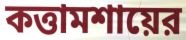
কত্তামশায়ের